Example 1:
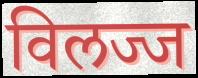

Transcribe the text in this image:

विलज्ज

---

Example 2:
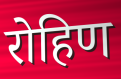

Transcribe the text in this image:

रोहिण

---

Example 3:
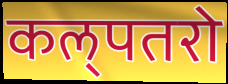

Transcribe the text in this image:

कल्पतरो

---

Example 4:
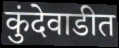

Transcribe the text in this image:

कुंदेवाडीत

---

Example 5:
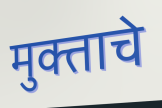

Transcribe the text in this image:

मुक्ताचे